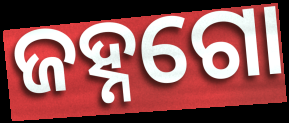
ଜହ୍ନଗୋ